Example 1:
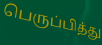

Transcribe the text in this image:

பெருப்பித்து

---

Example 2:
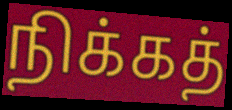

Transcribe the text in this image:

நிக்கத்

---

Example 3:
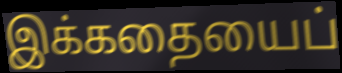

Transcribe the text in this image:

இக்கதையைப்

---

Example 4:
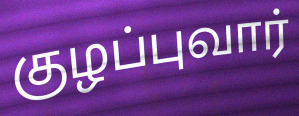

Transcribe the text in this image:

குழப்புவார்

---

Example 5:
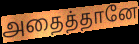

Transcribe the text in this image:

அதைத்தானே